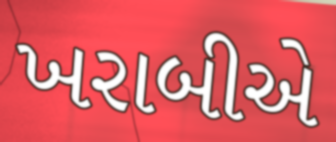
ખરાબીએ